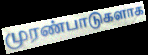
முரண்பாடுகளாக